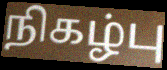
நிகழ்பு